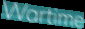
Wartime